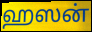
ஹஸன்